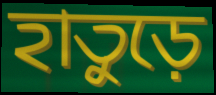
হাতুড়ে